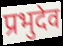
प्रभुदेव